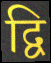
द्वि